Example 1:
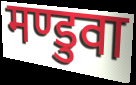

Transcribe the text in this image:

मण्डुवा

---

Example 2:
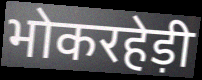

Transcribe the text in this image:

भोकरहेड़ी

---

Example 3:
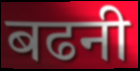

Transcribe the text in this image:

बढनी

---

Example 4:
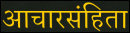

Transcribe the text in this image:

आचारसंहिता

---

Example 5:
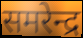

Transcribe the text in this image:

समरेन्द्र